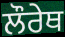
ਲੌਰੇਥ